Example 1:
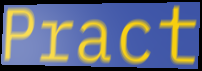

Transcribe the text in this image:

Pract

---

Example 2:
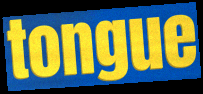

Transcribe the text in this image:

tongue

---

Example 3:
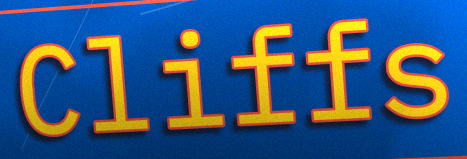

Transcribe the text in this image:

Cliffs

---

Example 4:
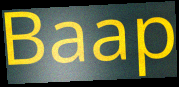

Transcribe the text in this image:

Baap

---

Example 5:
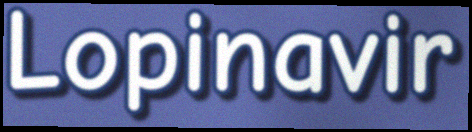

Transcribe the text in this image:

Lopinavir